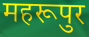
महरूपुर